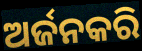
ଅର୍ଜନକରି